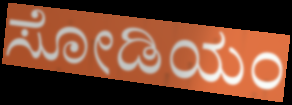
ಸೋಡಿಯಂ